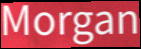
Morgan